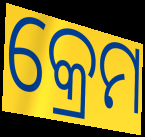
କ୍ରେମ